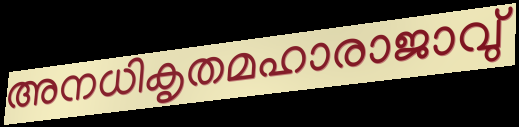
അനധികൃതമഹാരാജാവു്